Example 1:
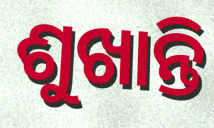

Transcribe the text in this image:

ଶୁଖାନ୍ତି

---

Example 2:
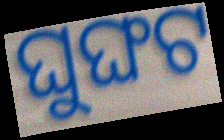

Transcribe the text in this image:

ଘୁଙ୍ଘଟ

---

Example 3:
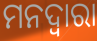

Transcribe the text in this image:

ମନଦ୍ଵାରା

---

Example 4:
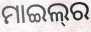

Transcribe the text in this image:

ମାଇଲ୍‍ର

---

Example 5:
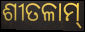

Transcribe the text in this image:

ଶୀତଳାମ୍